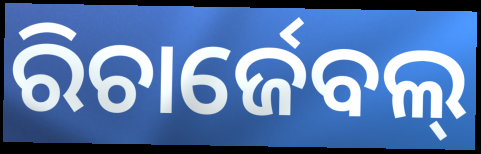
ରିଚାର୍ଜେବଲ୍